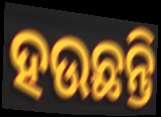
ହଉଛନ୍ତି